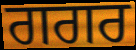
ਗਗਰ